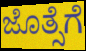
ಜೊತ್ಸೆಗೆ